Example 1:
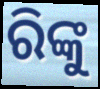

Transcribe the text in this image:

ରିଙ୍କୁ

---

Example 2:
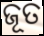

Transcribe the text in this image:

ଜୂତ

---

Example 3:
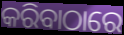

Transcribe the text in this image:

କରିବାଠାରେ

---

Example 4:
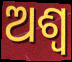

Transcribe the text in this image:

ଅଶ୍ବ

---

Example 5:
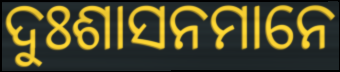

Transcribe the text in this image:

ଦୁଃଶାସନମାନେ